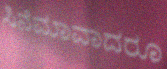
ಸಿನೆಮಾವಾದರೂ